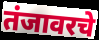
तंजावरचे